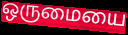
ஒருமையை